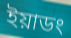
ইয়াডং